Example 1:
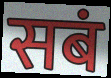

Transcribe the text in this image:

सबं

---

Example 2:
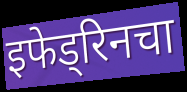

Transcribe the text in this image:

इफेड्रिनचा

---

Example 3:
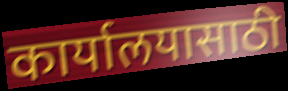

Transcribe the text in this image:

कार्यालयासाठी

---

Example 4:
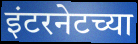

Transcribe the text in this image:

इंटरनेटच्या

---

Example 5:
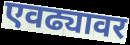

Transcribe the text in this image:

एवढ्यावर